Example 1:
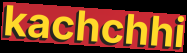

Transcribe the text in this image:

kachchhi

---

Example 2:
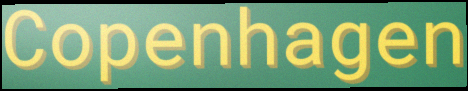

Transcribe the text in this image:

Copenhagen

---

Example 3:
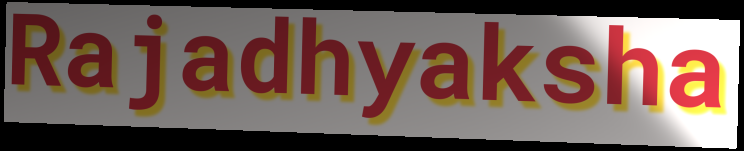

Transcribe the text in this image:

Rajadhyaksha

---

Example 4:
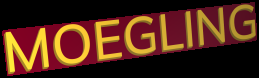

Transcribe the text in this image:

MOEGLING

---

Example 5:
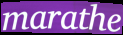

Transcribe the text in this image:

marathe